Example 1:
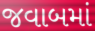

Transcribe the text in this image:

જવાબમાં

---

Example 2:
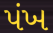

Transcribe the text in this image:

પંખ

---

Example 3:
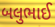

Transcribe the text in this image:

બલુભાઈ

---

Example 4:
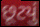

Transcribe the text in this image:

છૂટયું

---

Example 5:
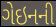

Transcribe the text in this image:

ગેઇનની